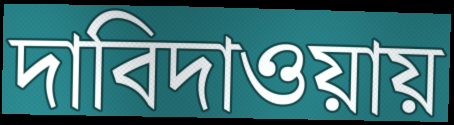
দাবিদাওয়ায়